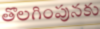
తొలగింపునకు